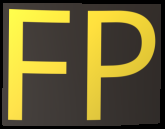
FP